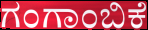
ಗಂಗಾಂಬಿಕೆ